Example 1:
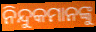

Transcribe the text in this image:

ନିନ୍ଦୁକମାନଙ୍କୁ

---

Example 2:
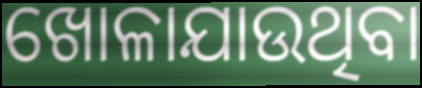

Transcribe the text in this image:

ଖୋଳାଯାଉଥିବା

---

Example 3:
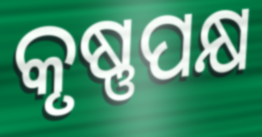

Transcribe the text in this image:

କୃଷ୍ଣପକ୍ଷ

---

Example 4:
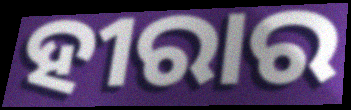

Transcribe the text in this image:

ହୀରାର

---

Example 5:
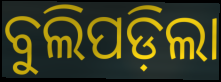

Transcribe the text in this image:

ବୁଲିପଡ଼ିଲା